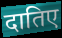
दातिए